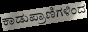
ಕಾಡುಪ್ರಾಣಿಗಳಿಂದ